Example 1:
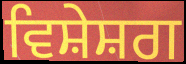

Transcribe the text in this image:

ਵਿਸ਼ੇਸ਼ਗ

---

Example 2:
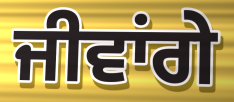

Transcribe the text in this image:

ਜੀਵਾਂਗੇ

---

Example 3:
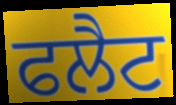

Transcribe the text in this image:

ਫਲੈਟ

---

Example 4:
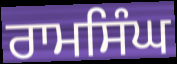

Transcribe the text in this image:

ਰਾਮਸਿੰਘ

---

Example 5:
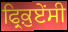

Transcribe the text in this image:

ਫ੍ਰਿਕ਼ੁਏਂਸੀ